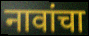
नावांचा